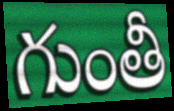
గుంతీ